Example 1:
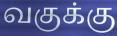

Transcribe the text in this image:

வகுக்கு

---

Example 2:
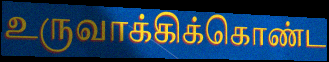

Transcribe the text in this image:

உருவாக்கிக்கொண்ட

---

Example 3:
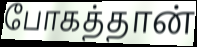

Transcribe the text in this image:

போகத்தான்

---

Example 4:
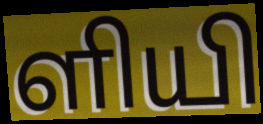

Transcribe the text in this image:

ளியி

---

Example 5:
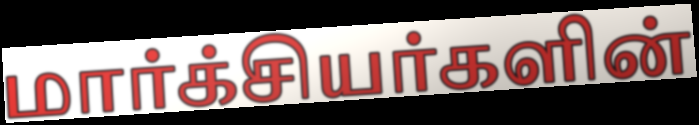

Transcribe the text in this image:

மார்க்சியர்களின்